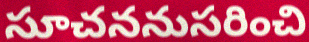
సూచననుసరించి